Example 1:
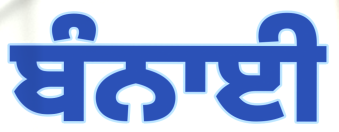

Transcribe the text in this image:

ਬੰਨਾਈ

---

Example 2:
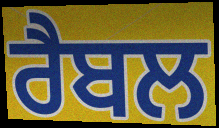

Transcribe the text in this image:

ਰੈਬਲ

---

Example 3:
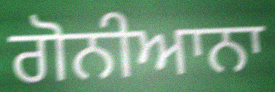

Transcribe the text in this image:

ਗੋਨੀਆਨਾ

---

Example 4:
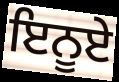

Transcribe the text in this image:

ਇਨੂਏ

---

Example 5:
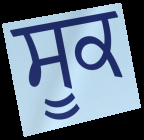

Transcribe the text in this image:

ਸੂਕ